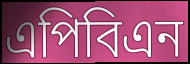
এপিবিএন